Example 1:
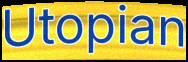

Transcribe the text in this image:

Utopian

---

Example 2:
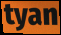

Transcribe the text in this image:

tyan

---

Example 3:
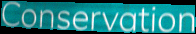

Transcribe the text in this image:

Conservation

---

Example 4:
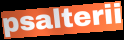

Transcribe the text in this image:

psalterii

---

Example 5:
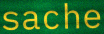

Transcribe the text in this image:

sache